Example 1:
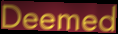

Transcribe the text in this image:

Deemed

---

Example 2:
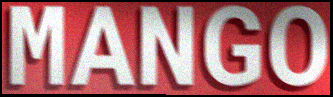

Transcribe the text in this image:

MANGO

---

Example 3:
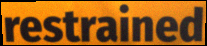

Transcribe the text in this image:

restrained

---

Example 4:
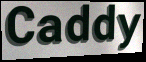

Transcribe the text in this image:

Caddy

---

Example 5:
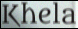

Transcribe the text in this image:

Khela